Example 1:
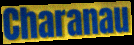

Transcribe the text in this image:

Charanau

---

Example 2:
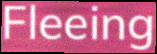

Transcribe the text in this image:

Fleeing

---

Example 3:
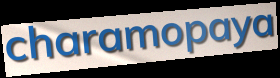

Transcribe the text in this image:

charamopaya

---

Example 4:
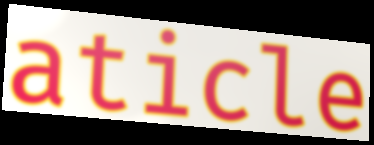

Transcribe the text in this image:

aticle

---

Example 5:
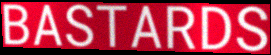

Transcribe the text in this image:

BASTARDS